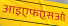
आइएफएसओ